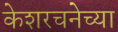
केशरचनेच्या